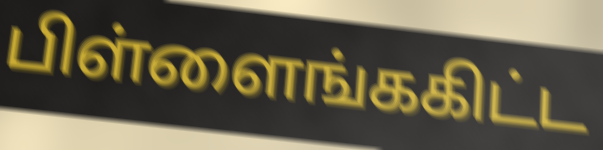
பிள்ளைங்ககிட்ட